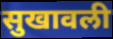
सुखावली